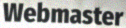
Webmaster